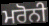
ਮਰੋਨੀ